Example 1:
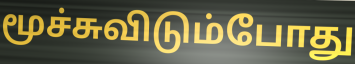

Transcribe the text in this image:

மூச்சுவிடும்போது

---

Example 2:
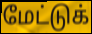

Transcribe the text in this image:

மேட்டுக்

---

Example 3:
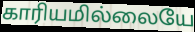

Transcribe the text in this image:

காரியமில்லையே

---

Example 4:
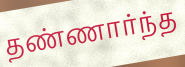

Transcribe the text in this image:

தண்ணார்ந்த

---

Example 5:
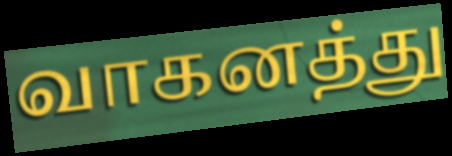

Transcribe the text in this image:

வாகனத்து